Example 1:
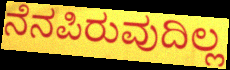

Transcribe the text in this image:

ನೆನಪಿರುವುದಿಲ್ಲ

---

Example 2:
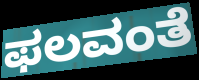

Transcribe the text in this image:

ಫಲವಂತೆ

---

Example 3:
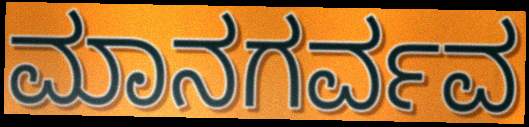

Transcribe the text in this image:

ಮಾನಗರ್ವವ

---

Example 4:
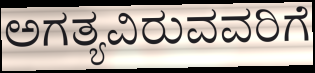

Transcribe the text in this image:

ಅಗತ್ಯವಿರುವವರಿಗೆ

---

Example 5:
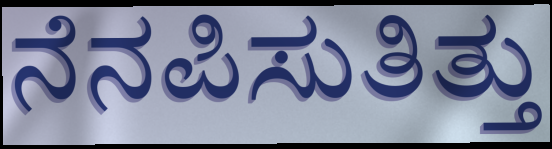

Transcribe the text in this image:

ನೆನಪಿಸುತಿತ್ತು